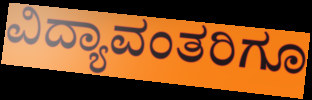
ವಿದ್ಯಾವಂತರಿಗೂ